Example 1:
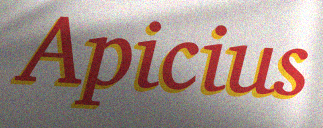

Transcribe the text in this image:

Apicius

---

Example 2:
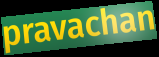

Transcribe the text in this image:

pravachan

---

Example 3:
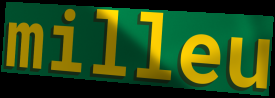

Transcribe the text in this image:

milleu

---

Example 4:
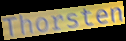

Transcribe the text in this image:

Thorsten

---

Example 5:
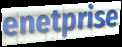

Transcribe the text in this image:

enetprise